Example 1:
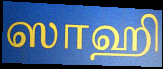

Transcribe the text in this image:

ஸாஹி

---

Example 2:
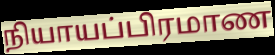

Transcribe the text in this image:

நியாயப்பிரமாண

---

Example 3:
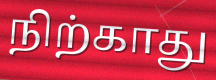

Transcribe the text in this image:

நிற்காது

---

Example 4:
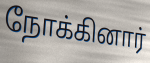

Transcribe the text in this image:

நோக்கினார்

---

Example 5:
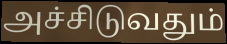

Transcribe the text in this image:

அச்சிடுவதும்